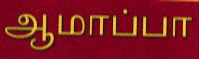
ஆமாப்பா